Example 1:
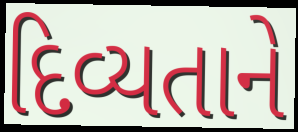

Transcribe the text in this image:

દિવ્યતાને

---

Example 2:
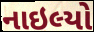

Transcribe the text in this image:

નાઇલ્યો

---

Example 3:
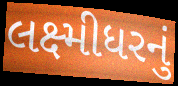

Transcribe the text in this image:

લક્ષ્મીધરનું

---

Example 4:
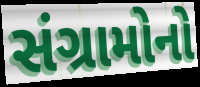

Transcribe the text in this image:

સંગ્રામોનો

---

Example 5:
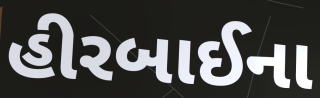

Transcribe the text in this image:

હીરબાઈના